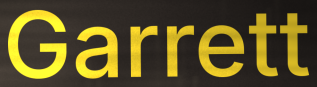
Garrett